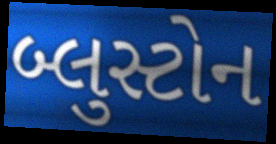
બ્લુસ્ટોન